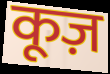
कूज़